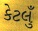
કેટલુઁ